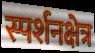
स्पर्शनक्षेत्र